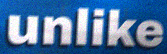
unlike